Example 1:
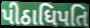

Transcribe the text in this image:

પીઠાધિપતિ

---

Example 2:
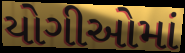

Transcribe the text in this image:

યોગીઓમાં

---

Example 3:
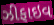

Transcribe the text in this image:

ઝીફાઇવ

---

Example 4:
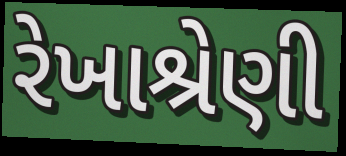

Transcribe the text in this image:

રેખાશ્રેણી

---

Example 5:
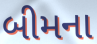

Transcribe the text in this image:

બીમના